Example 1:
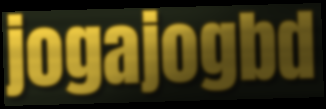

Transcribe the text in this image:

jogajogbd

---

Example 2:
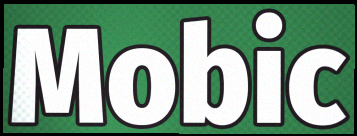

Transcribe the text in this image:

Mobic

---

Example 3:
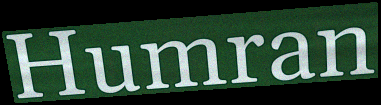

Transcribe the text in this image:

Humran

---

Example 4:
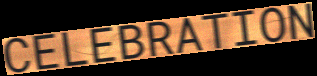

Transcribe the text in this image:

CELEBRATION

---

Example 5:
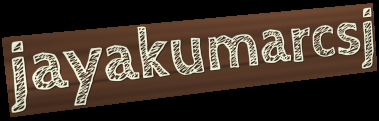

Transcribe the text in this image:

jayakumarcsj